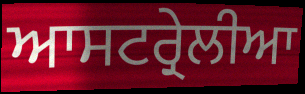
ਆਸਟਰ੍ਰੇਲੀਆ